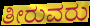
ತೀರುವರು